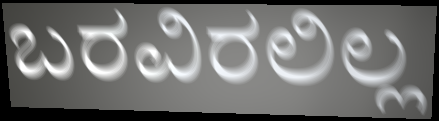
ಬರವಿರಲಿಲ್ಲ